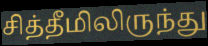
சித்தீமிலிருந்து